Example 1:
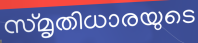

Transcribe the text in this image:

സ്മൃതിധാരയുടെ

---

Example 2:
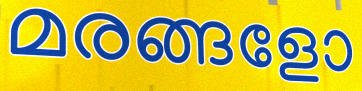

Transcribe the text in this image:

മരങ്ങളോ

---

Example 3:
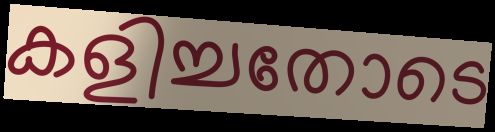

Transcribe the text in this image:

കളിച്ചതോടെ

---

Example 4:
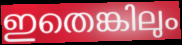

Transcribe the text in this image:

ഇതെങ്കിലും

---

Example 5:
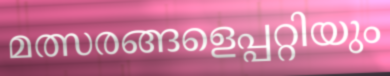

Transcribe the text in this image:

മത്സരങ്ങളെപ്പറ്റിയും